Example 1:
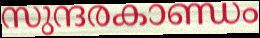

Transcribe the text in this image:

സുന്ദരകാണ്ഡം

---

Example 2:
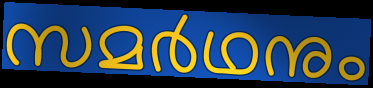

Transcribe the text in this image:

സമർഥനും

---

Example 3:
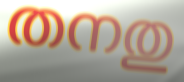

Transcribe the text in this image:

തനതു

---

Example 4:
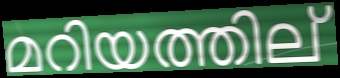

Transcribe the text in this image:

മറിയത്തില്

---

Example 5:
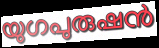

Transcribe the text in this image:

യുഗപുരുഷൻ